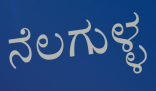
ನೆಲಗುಳ್ಳ